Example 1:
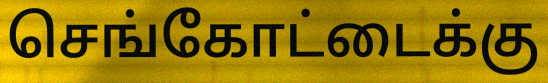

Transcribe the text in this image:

செங்கோட்டைக்கு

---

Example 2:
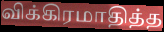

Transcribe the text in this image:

விக்கிரமாதித்த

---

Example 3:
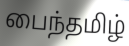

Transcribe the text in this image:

பைந்தமிழ்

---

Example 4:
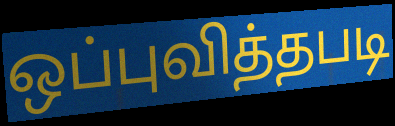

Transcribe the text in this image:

ஒப்புவித்தபடி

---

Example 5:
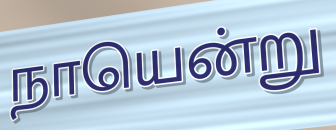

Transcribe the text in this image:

நாயென்று